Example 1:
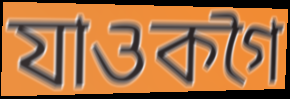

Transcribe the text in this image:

যাওকগৈ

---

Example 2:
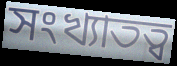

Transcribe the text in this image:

সংখ্যাতত্ব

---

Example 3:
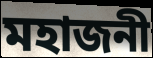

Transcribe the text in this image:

মহাজনী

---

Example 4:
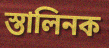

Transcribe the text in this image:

স্তালিনক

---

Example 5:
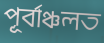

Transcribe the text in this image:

পূৰ্বাঞ্চলত